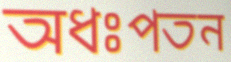
অধঃপতন